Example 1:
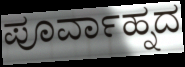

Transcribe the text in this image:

ಪೂರ್ವಾಹ್ನದ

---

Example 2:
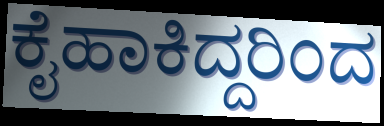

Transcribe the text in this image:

ಕೈಹಾಕಿದ್ದರಿಂದ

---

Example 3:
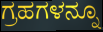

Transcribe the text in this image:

ಗ್ರಹಗಳನ್ನೂ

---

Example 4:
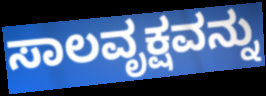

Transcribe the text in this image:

ಸಾಲವೃಕ್ಷವನ್ನು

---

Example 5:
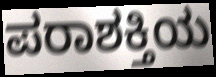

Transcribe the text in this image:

ಪರಾಶಕ್ತಿಯ